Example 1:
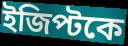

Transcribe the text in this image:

ইজিপ্টকে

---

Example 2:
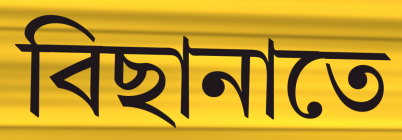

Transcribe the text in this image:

বিছানাতে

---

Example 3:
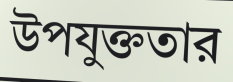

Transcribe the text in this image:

উপযুক্ততার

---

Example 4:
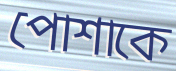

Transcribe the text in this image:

পোশাকে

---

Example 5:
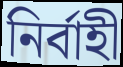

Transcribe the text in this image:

নির্বাহী